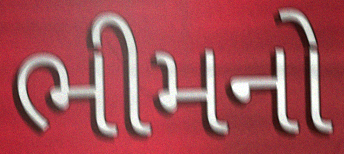
ભીમનો